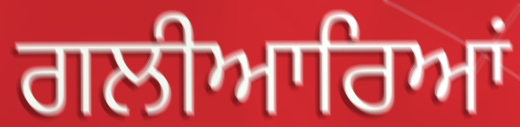
ਗਲੀਆਰਿਆਂ